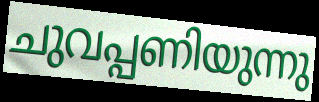
ചുവപ്പണിയുന്നു